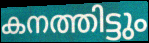
കനത്തിട്ടും